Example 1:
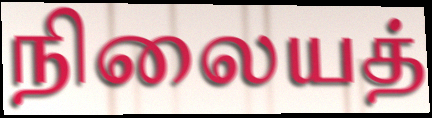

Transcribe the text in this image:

நிலையத்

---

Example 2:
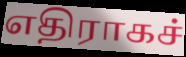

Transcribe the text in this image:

எதிராகச்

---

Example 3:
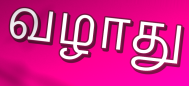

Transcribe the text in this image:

வழாது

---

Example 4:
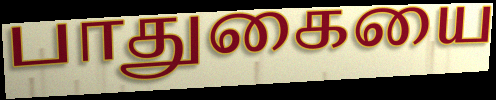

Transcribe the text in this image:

பாதுகையை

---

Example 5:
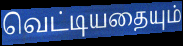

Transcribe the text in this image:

வெட்டியதையும்